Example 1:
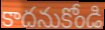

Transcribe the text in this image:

కాదనుకోండి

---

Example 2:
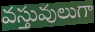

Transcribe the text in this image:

వస్తువులుగా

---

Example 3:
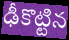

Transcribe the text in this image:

ఢీకొట్టిన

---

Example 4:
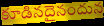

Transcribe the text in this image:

కూడినదైనందున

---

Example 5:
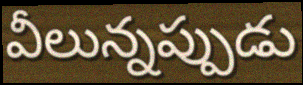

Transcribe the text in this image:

వీలున్నప్పుడు